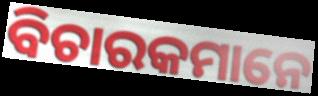
ବିଚାରକମାନେ